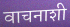
वाचनाशी